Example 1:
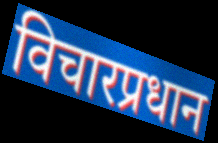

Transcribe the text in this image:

विचारप्रधान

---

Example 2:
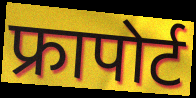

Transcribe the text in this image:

फ्रापोर्ट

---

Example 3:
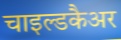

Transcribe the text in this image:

चाइल्डकैअर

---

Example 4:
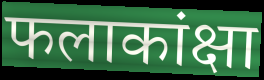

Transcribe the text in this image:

फलाकांक्षा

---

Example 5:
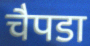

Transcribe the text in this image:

चैपडा